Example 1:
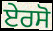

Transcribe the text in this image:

ਏਰਸੋ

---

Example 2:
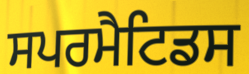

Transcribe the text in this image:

ਸਪਰਮੈਟਿਡਸ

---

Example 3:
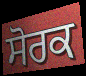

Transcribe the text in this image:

ਸੋਰਕ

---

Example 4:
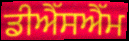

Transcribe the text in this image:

ਡੀਐੱਸਐੱਮ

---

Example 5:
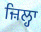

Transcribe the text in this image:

ਜ਼ਿਲ੍ਹ੍ਹਾ